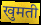
खुमती